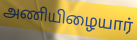
அணியிழையார்